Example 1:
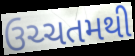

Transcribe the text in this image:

ઉચ્ચતમથી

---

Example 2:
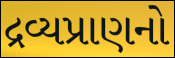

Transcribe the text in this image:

દ્રવ્યપ્રાણનો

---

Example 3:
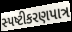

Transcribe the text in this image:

સ્પષ્ટીકરણપાત્ર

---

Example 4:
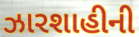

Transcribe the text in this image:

ઝારશાહીની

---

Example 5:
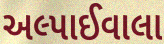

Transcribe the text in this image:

અલ્પાઈવાલા